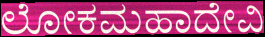
ಲೋಕಮಹಾದೇವಿ